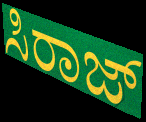
ಸಿರಾಜ್